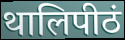
थालिपीठं